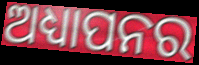
ଅଧ୍ୟାପନର